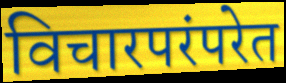
विचारपरंपरेत